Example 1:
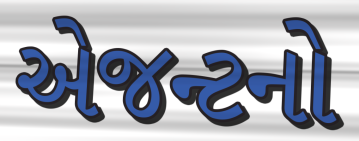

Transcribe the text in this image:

એજન્ટનો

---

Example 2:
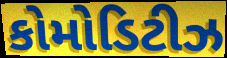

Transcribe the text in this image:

કોમોડિટીઝ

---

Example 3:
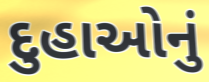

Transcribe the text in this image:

દુહાઓનું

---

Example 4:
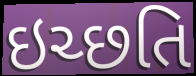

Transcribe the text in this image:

ઇચ્છતિ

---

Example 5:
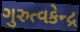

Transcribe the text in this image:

ગુરુત્વકેન્દ્ર